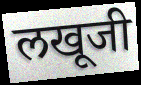
लखूजी